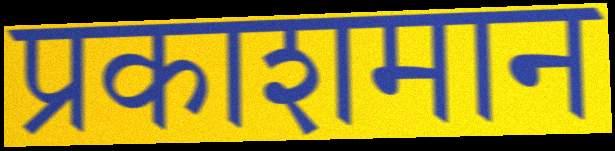
प्रकाशमान